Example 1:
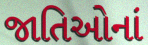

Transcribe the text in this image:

જાતિઓનાં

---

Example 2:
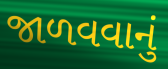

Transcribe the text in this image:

જાળવવાનું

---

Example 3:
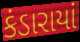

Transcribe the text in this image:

કંડારાયાં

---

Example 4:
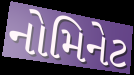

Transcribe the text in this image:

નોમિનેટ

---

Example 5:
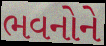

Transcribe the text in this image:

ભવનોને